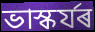
ভাস্কৰ্যৰ